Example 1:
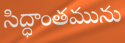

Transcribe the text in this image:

సిద్ధాంతమును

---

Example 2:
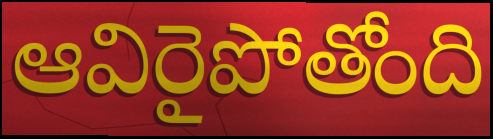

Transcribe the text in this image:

ఆవిరైపోతోంది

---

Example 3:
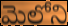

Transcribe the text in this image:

మెలోని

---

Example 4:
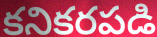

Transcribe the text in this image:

కనికరపడి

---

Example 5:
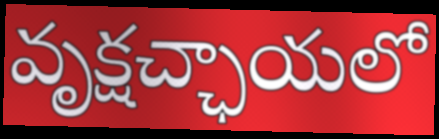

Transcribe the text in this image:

వృక్షచ్ఛాయలో